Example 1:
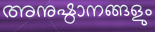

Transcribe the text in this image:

അനുഷ്ഠാനങ്ങളും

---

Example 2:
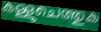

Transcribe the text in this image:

കള്ളുചെത്തുക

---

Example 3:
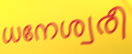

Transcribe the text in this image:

ധനേശ്വരീ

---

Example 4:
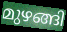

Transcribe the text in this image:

മുഴങ്ങി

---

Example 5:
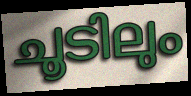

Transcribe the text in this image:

ചൂടിലും